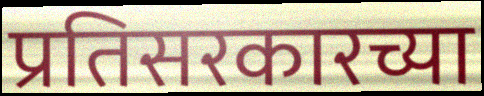
प्रतिसरकारच्या